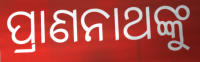
ପ୍ରାଣନାଥଙ୍କୁ